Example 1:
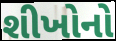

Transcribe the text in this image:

શીખોનો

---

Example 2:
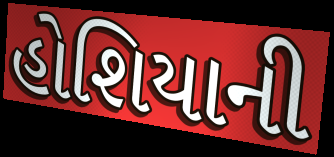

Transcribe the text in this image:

હોશિયાની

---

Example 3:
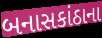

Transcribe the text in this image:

બનાસકાંઠાના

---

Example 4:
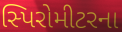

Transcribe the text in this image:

સ્પિરોમીટરના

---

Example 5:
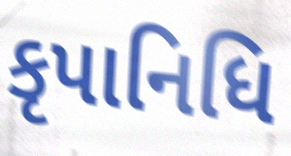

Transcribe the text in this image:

કૃપાનિધિ